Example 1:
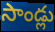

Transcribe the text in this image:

సాండ్లు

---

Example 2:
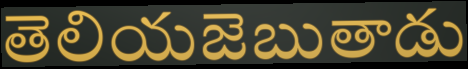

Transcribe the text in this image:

తెలియజెబుతాడు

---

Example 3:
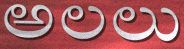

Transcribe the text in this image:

అలలు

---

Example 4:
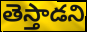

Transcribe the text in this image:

తెస్తాడని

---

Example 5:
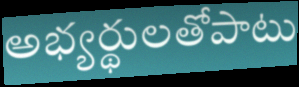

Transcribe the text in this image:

అభ్యర్థులతోపాటు